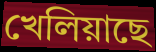
খেলিয়াছে